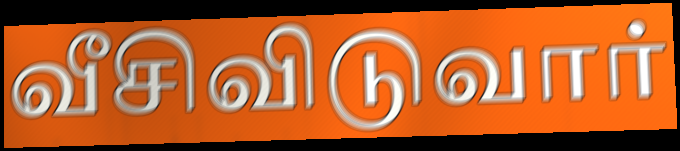
வீசிவிடுவார்